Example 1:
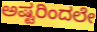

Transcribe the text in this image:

ಅಷ್ಟರಿಂದಲೇ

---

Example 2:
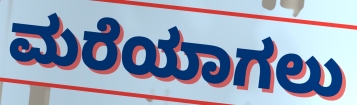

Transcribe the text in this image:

ಮರೆಯಾಗಲು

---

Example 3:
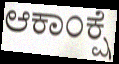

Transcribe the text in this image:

ಆಕಾಂಕ್ಷೆ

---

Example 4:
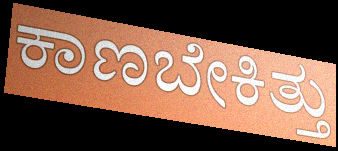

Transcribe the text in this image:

ಕಾಣಬೇಕಿತ್ತು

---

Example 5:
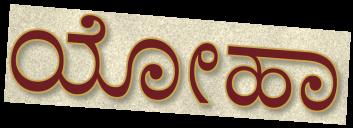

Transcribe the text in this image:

ಯೋಹಾ